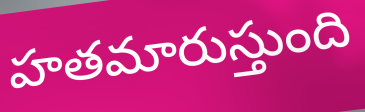
హతమారుస్తుంది